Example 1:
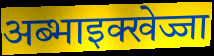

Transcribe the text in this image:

अब्भाइक्खेज्जा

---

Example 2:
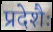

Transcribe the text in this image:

प्रदेशैः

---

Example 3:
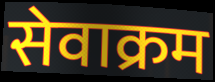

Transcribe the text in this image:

सेवाक्रम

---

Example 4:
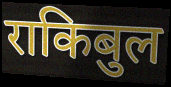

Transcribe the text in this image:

राकिबुल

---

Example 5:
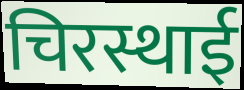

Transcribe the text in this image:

चिरस्थाई